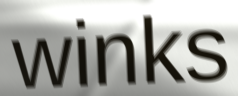
winks